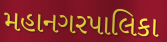
મહાનગરપાલિકા